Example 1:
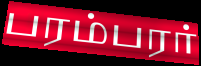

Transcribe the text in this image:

பரம்பரர்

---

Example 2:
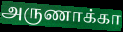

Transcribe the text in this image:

அருணாக்கா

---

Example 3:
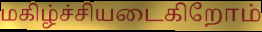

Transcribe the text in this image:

மகிழ்ச்சியடைகிறோம்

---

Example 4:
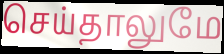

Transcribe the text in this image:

செய்தாலுமே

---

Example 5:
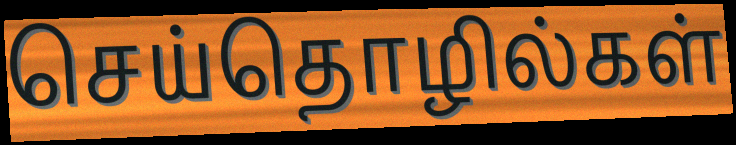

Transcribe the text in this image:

செய்தொழில்கள்